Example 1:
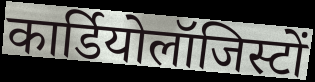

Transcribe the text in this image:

कार्डियोलॉजिस्टों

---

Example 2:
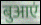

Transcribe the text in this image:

बुआएं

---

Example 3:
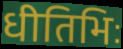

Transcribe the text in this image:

धीतिभिः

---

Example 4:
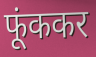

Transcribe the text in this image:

फूंककर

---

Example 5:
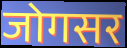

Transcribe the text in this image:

जोगसर